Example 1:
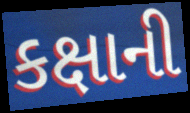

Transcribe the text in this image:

કક્ષાની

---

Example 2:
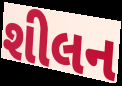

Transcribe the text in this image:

શીલન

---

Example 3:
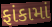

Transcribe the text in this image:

ફાંકામાં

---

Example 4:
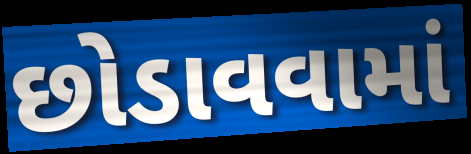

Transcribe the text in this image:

છોડાવવામાં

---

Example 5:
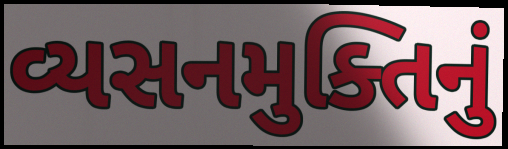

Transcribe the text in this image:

વ્યસનમુક્તિનું